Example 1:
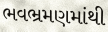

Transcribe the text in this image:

ભવભ્રમણમાંથી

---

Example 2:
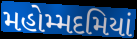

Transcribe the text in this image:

મહોમ્મદમિયાં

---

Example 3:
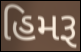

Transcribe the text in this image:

હિમરૂ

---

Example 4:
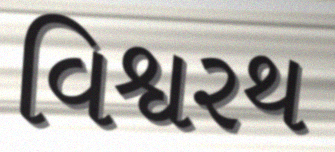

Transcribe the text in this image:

વિશ્વરથ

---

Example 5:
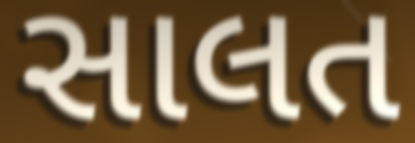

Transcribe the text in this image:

સાલત